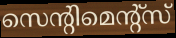
സെന്റിമെന്റ്സ്